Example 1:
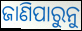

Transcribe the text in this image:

ଜାଣିପାରୁନୁ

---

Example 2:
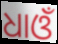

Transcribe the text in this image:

ଧାଓଁ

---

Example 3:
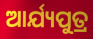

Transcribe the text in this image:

ଆର୍ଯ୍ୟପୁତ୍ର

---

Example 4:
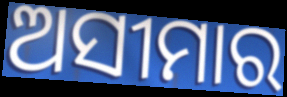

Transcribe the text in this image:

ଅସୀମାର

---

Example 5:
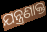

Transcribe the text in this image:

ଯନ୍ତ୍ରଣାକ୍ତ